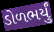
ડોળભર્યું